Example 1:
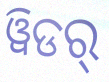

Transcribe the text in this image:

ୱିଡର୍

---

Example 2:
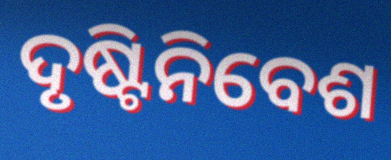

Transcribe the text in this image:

ଦୃଷ୍ଟିନିବେଶ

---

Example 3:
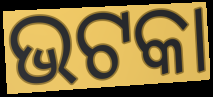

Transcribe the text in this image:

ଭଟକା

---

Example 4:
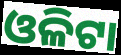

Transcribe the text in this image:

ଓଳିଟା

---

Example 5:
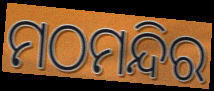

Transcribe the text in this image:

ମଠମନ୍ଦିର